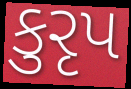
કુરૃપ